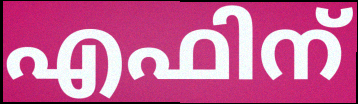
എഫിന്